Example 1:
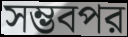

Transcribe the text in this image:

সম্ভবপর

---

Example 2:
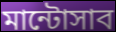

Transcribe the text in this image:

মান্টোসাব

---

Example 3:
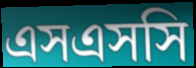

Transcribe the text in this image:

এসএসসি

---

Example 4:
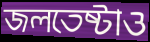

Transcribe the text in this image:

জলতেষ্টাও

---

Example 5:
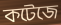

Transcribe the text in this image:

কটেজে